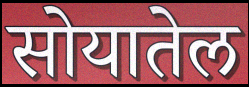
सोयातेल